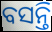
ବସନ୍ତି